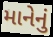
માનેનું